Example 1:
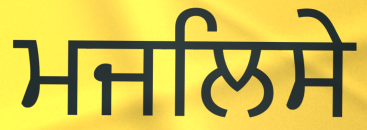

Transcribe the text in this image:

ਮਜਲਿਸੇ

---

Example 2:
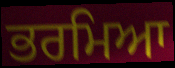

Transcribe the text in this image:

ਭਰਮਿਆ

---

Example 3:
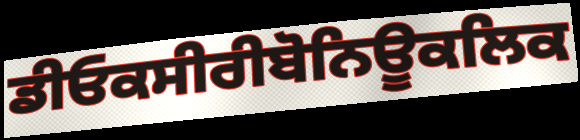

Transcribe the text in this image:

ਡੀਓਕਸੀਰੀਬੋਨਿਊਕਲਿਕ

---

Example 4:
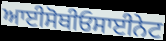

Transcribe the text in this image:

ਆਈਸੋਥੀਓਸਾਈਨੇਟ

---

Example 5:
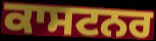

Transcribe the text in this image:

ਕਾਸਟਨਰ